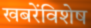
खबरेंविशेष